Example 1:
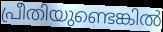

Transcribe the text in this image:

പ്രീതിയുണ്ടെങ്കിൽ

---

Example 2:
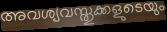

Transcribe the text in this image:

അവശ്യവസ്തുക്കളുടെയും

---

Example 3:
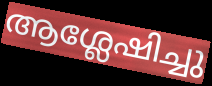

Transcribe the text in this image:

ആശ്ലേഷിച്ചു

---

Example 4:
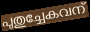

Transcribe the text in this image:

പുതുച്ചേകവന്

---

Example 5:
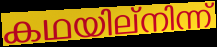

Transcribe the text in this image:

കഥയില്നിന്ന്